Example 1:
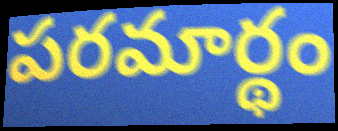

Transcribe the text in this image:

పరమార్థం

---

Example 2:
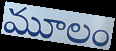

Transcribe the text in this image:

మూలం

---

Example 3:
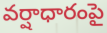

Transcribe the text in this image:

వర్షాధారంపై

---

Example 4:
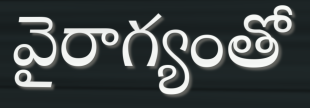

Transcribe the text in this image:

వైరాగ్యంతో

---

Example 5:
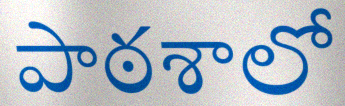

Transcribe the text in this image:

పాఠశాలో